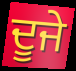
ਦੂਜੇ